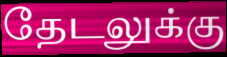
தேடலுக்கு